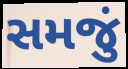
સમજું